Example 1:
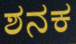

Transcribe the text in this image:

ಶನಕ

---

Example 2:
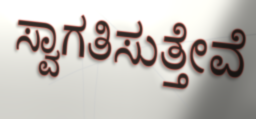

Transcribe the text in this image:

ಸ್ವಾಗತಿಸುತ್ತೇವೆ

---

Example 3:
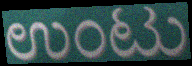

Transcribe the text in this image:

ಉಂಟು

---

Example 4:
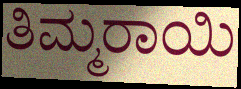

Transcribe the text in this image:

ತಿಮ್ಮರಾಯಿ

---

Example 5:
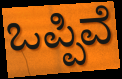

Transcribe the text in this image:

ಒಪ್ಪಿವೆ